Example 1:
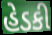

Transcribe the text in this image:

હેડકી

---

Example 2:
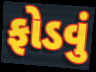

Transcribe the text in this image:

ફોડવું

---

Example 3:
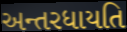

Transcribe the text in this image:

અન્તરધાયતિ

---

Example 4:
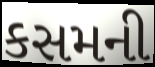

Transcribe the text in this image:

કસમની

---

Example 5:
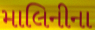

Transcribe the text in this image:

માલિનીના